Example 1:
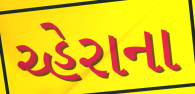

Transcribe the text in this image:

ચ્હેરાના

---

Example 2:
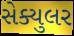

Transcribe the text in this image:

સેક્યુલર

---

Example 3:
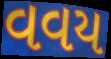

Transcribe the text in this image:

વવય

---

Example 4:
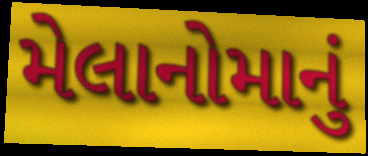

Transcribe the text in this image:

મેલાનોમાનું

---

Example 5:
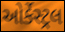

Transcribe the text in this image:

ઓર્કેસ્ટ્રલ